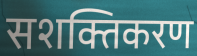
सशक्‍तिकरण